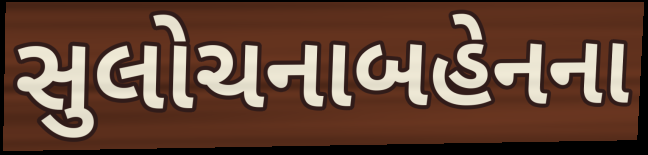
સુલોચનાબહેનના